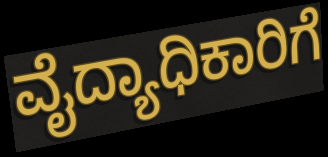
ವೈದ್ಯಾಧಿಕಾರಿಗೆ